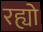
रह्यो